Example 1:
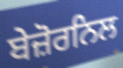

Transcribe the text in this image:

ਬੇਜ਼ੋਰਨਿਲ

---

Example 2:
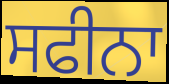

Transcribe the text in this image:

ਸਫੀਨਾ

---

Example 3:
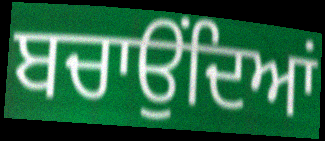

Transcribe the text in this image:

ਬਚਾਉਂਦਿਆਂ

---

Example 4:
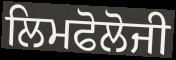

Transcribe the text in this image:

ਲਿਮਫੋਲੋਜੀ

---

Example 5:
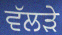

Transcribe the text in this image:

ਵੱਲੜੇ